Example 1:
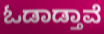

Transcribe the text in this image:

ಓಡಾಡ್ತಾವೆ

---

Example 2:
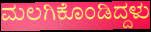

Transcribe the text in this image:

ಮಲಗಿಕೊಂಡಿದ್ದಳು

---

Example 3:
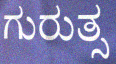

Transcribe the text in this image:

ಗುರುತ್ಸ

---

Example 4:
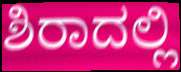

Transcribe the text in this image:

ಶಿರಾದಲ್ಲಿ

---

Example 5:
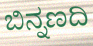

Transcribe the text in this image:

ಬಿನ್ನಣದಿ